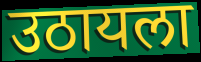
उठायला